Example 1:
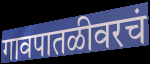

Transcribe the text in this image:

गावपातळीवरचं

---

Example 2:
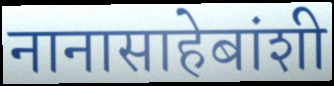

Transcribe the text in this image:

नानासाहेबांशी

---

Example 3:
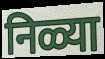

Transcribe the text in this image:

निळ्या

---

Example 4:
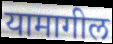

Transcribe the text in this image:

यामागील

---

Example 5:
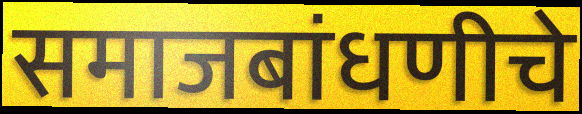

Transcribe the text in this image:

समाजबांधणीचे